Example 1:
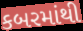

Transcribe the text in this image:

કબરમાંથી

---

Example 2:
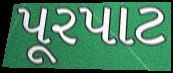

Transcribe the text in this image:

પૂરપાટ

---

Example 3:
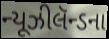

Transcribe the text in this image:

ન્યૂઝીલૅન્ડના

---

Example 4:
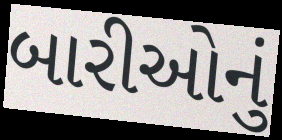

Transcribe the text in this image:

બારીઓનું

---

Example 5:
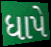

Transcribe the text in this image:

ધાપે